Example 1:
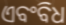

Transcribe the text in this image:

ଏବଂବିଧ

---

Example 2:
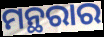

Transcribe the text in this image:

ମନ୍ଥରାର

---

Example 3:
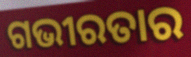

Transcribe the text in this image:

ଗଭୀରତାର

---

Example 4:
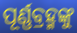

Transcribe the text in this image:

ପୂର୍ଣ୍ଣବ୍ରହ୍ମଙ୍କୁ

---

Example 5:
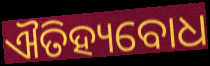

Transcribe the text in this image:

ଐତିହ୍ୟବୋଧ